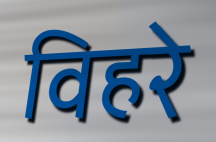
विहरे